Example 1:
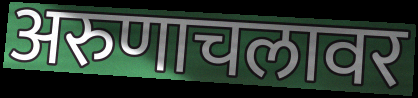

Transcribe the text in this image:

अरुणाचलावर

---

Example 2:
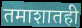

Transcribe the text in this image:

तमाशातही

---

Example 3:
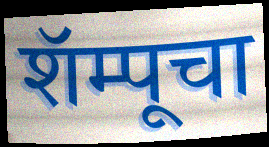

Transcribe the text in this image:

शॅम्पूचा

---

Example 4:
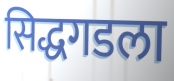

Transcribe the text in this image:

सिद्धगडला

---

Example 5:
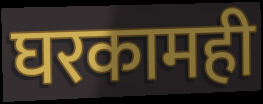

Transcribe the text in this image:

घरकामही